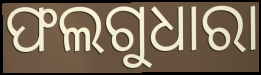
ଫଲଗୁଧାରା